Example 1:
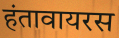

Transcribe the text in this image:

हंतावायरस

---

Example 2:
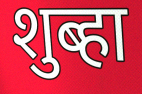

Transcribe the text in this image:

शुब्हा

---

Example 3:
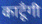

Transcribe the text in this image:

काटूँगी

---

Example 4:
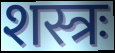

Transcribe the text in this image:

शस्त्रः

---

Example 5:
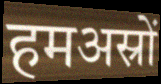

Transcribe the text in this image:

हमअस्रों